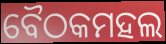
ବୈଠକମହଲ